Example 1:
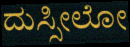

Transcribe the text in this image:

ದುಸ್ಸೀಲೋ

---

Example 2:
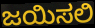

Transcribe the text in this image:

ಜಯಿಸಲಿ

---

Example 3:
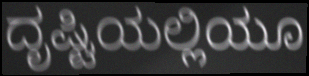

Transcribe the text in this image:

ದೃಷ್ಟಿಯಲ್ಲಿಯೂ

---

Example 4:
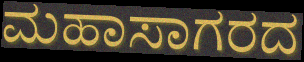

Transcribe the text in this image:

ಮಹಾಸಾಗರದ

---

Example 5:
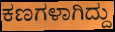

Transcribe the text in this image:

ಕಣಗಳಾಗಿದ್ದು